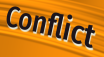
Conflict